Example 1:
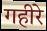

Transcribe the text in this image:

गहीरे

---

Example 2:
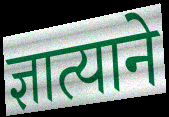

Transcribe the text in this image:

ज्ञात्याने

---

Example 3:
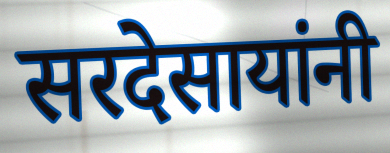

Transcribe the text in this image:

सरदेसायांनी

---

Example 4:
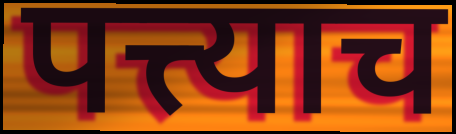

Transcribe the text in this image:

पत्त्याच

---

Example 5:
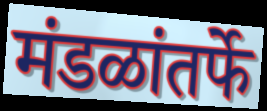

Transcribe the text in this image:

मंडळांतर्फे